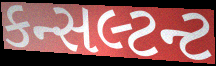
કન્સલ્ટન્ટ